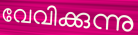
വേവിക്കുന്നു